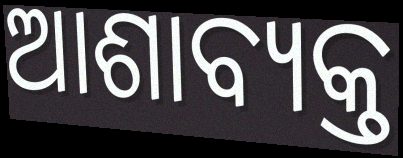
ଆଶାବ୍ୟକ୍ତ